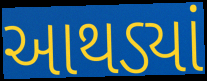
આથડ્યાં